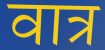
वात्र